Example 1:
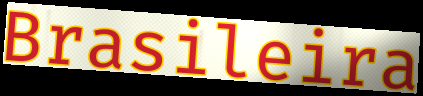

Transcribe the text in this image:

Brasileira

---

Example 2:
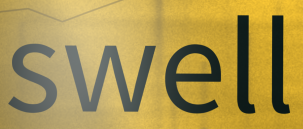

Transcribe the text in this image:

swell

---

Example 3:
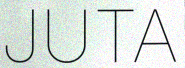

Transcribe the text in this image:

JUTA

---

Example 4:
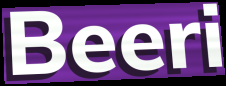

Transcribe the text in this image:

Beeri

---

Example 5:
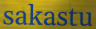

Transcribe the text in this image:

sakastu